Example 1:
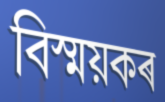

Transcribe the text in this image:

বিস্ময়কৰ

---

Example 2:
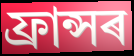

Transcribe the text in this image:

ফ্ৰান্সৰ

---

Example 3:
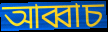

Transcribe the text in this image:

আব্বাচ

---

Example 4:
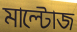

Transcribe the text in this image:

মাল্টোজ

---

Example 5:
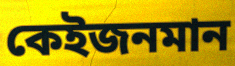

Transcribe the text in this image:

কেইজনমান